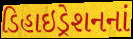
ડિહાઇડ્રેશનનાં